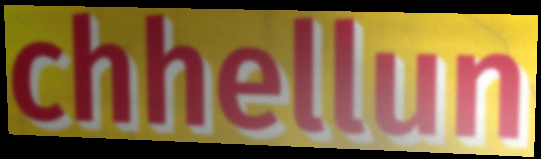
chhellun